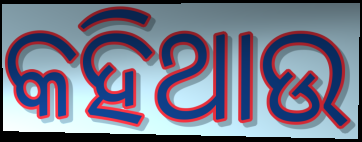
କହିଥାଉ